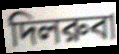
দিলরুবা